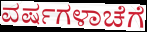
ವರ್ಷಗಳಾಚೆಗೆ